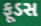
ફૂડસ